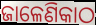
ଜାଳେଣିକାଠ